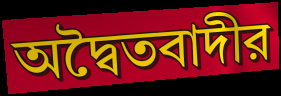
অদ্বৈতবাদীর